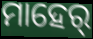
ମାହେର୍